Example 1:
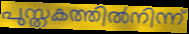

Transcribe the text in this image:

പുസ്തകത്തിൽനിന്ന്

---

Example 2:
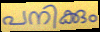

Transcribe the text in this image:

പനിക്കും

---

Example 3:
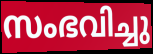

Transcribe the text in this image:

സംഭവിച്ചു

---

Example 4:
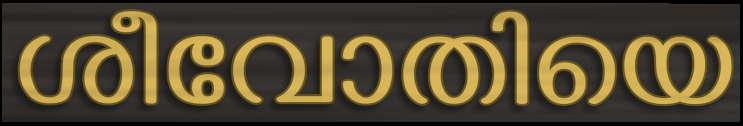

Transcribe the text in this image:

ശീവോതിയെ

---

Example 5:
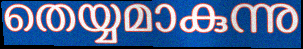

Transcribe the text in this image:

തെയ്യമാകുന്നു